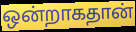
ஒன்றாகதான்